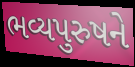
ભવ્યપુરુષને